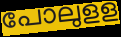
പോലുളള